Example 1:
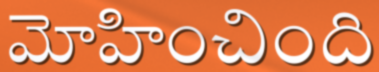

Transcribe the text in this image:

మోహించింది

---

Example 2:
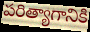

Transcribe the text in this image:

పరిత్యాగానికి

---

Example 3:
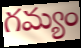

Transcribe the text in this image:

గమ్యం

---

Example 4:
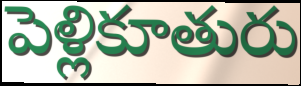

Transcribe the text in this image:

పెళ్లికూతురు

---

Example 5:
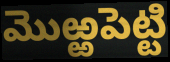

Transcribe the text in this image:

మొఱ్ఱపెట్టి